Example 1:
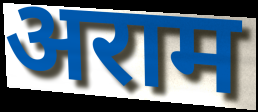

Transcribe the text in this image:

अराम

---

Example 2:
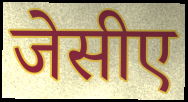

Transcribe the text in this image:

जेसीए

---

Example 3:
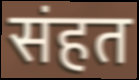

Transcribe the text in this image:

संहत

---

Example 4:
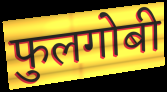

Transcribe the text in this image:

फुलगोबी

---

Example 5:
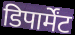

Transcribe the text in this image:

डिपार्मेंट